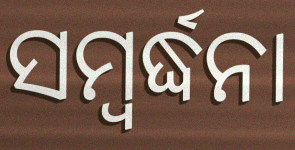
ସମ୍ୱର୍ଦ୍ଧନା